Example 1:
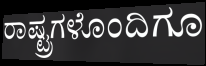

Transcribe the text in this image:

ರಾಷ್ಟ್ರಗಳೊಂದಿಗೂ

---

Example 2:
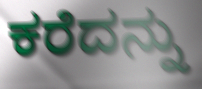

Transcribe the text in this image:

ಕರೆದನ್ನು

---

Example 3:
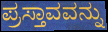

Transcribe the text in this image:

ಪ್ರಸ್ತಾವವನ್ನು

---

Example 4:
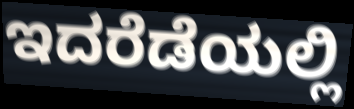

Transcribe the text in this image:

ಇದರೆಡೆಯಲ್ಲಿ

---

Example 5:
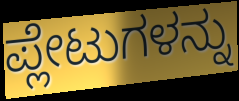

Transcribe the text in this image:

ಪ್ಲೇಟುಗಳನ್ನು